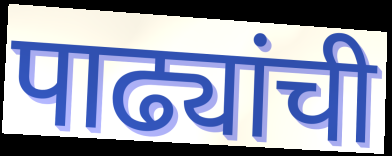
पाढ्यांची